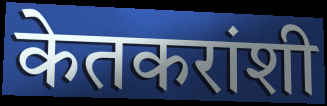
केतकरांशी